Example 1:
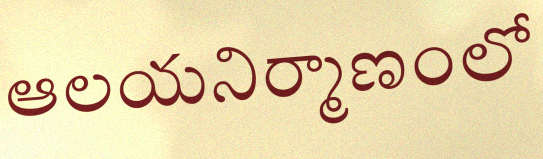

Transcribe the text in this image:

ఆలయనిర్మాణంలో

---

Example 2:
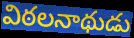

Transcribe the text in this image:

విఠలనాథుడు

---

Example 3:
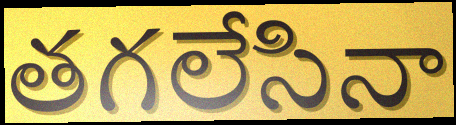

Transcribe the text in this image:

తగలేసినా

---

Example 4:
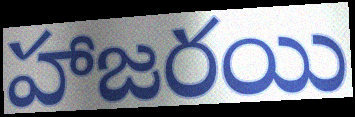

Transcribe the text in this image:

హాజరయి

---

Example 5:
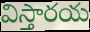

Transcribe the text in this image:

విస్తారయ